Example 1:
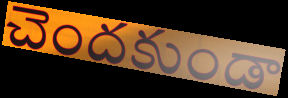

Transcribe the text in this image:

చెందకుండా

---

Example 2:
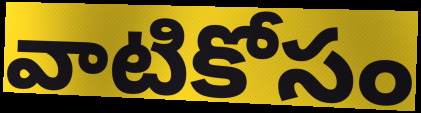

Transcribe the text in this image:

వాటికోసం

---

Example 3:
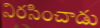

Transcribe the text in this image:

నిరసించాడు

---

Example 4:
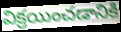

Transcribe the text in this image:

విక్రయించడానికి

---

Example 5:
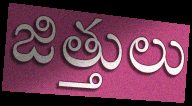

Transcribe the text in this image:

జిత్తులు